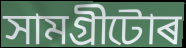
সামগ্ৰীটোৰ